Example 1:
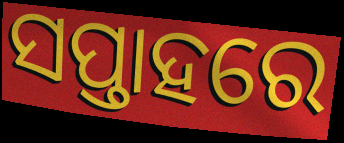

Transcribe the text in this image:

ସପ୍ତାହରେ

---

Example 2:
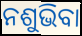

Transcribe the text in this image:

ନଶୁଭିବା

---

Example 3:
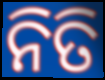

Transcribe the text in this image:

ନିତି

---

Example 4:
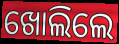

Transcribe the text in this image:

ଖୋଲିଲେ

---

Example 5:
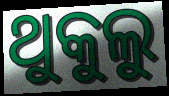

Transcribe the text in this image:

ଥୁକୁଲୁ